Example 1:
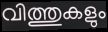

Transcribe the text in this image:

വിത്തുകളും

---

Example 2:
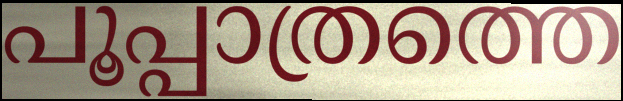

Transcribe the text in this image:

പൂപ്പാത്രത്തെ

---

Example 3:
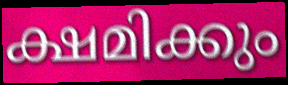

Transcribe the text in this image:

ക്ഷമിക്കും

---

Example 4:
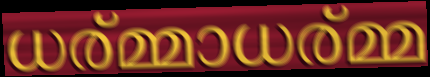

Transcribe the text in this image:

ധര്മ്മാധര്മ്മ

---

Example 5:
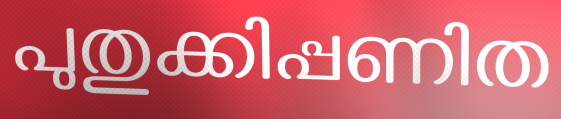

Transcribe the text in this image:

പുതുക്കിപ്പണിത